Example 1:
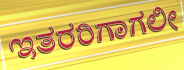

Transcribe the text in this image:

ಇತರರಿಗಾಗಲೀ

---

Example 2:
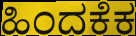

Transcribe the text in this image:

ಹಿಂದಕೆಕ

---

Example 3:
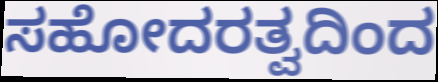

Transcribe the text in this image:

ಸಹೋದರತ್ವದಿಂದ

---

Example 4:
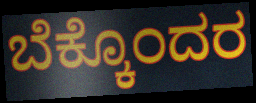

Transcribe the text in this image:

ಬೆಕ್ಕೊಂದರ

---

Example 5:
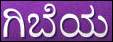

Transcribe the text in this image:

ಗಿಬೆಯ